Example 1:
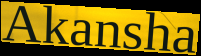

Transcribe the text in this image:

Akansha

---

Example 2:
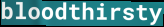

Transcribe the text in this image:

bloodthirsty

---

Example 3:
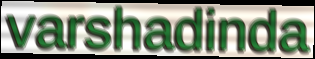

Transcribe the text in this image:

varshadinda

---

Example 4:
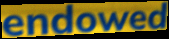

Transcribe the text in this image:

endowed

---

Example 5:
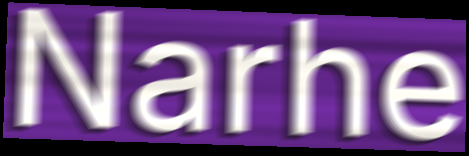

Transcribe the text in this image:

Narhe